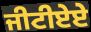
ਜੀਟੀਏਏ